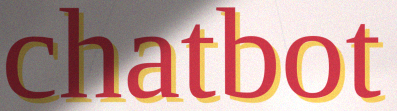
chatbot